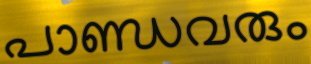
പാണ്ഡവരും